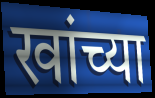
खांच्या